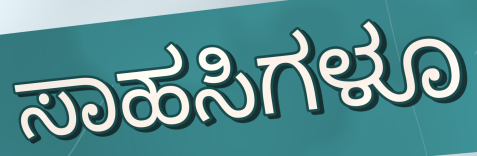
ಸಾಹಸಿಗಳೂ